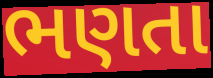
ભણતા